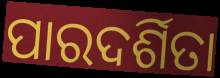
ପାରଦର୍ଶିତା